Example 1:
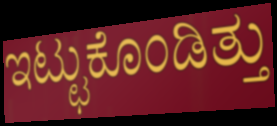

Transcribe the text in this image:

ಇಟ್ಟುಕೊಂಡಿತ್ತು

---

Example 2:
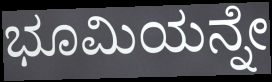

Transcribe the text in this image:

ಭೂಮಿಯನ್ನೇ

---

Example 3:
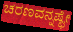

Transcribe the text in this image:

ಚರಣವನ್ನಷ್ಟೇ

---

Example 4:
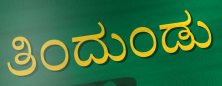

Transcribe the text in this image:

ತಿಂದುಂಡು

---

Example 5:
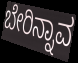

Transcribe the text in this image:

ಬೇರಿನ್ನಾವ